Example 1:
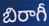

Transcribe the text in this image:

బిరాగీ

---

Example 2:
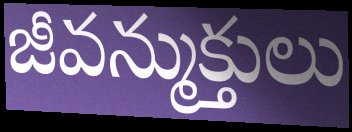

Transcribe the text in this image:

జీవన్ముక్తులు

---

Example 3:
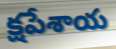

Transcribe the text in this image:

క్షపేశాయ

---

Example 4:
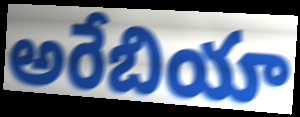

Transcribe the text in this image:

అరేబియా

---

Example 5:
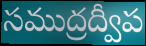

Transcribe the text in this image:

సముద్రద్వీప